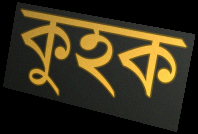
কুহক